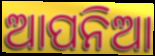
ଆପନିଆ